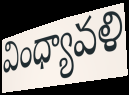
వింధ్యావళి